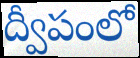
ద్వీపంలో